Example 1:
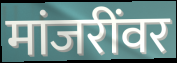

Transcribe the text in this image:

मांजरींवर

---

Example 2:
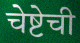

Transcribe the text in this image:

चेष्टेची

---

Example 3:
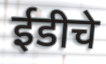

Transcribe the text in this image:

ईडीचे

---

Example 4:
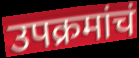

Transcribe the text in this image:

उपक्रमांचं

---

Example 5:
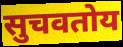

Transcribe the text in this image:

सुचवतोय